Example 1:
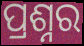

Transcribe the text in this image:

ପ୍ରଶ୍ନର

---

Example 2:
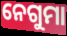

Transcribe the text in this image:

ନେଗୁମା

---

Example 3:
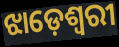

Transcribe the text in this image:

ଝାଡ଼େଶ୍ୱରୀ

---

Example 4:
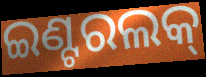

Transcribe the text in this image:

ଇଣ୍ଟରଲକ୍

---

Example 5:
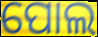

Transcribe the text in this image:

ପୋଲ